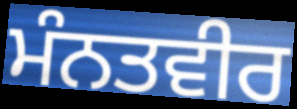
ਮੰਨਤਵੀਰ